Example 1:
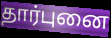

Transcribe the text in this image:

தார்புனை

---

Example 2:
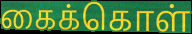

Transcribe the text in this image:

கைக்கொள்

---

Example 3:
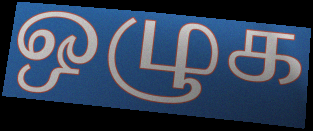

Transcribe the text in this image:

ஒழுக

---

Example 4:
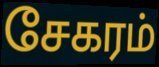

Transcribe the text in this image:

சேகரம்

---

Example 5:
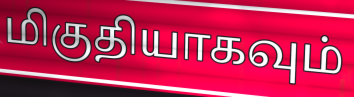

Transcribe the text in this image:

மிகுதியாகவும்